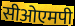
सीओएमपी